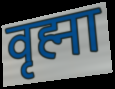
वृह्मा